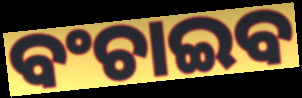
ବଂଚାଇବ